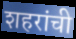
शहरांची